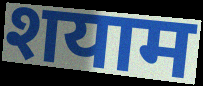
शयाम